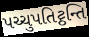
પચ્ચુપતિટ્ઠન્તિ